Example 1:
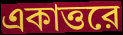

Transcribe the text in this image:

একাত্তরে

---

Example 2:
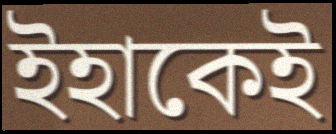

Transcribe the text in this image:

ইহাকেই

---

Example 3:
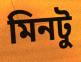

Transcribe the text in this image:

মিনটু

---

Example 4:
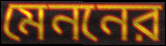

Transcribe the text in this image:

মেননের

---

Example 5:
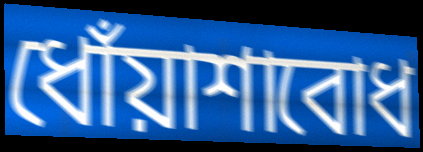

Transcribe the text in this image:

ধোঁয়াশাবোধ